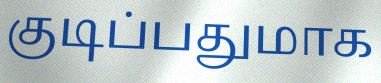
குடிப்பதுமாக